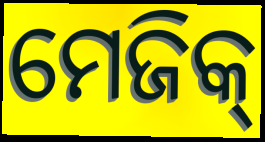
ମେଜିକ୍